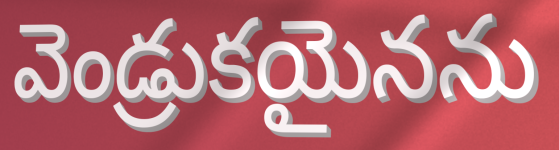
వెండ్రుకయైనను